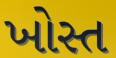
ખોસ્ત